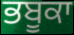
ਭਬੂਕਾ